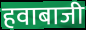
हवाबाजी